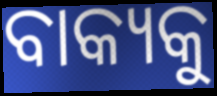
ବାକ୍ୟକୁ